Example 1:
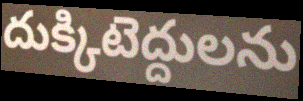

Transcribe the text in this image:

దుక్కిటెద్దులను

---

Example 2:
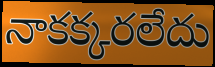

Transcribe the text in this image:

నాకక్కరలేదు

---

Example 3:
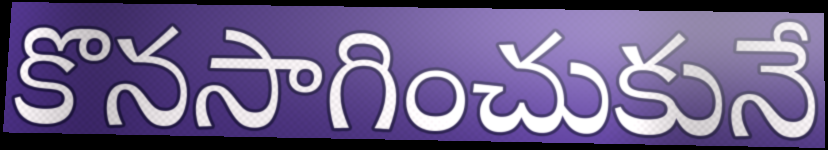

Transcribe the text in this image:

కొనసాగించుకునే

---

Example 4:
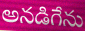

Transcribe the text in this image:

అనడిగేను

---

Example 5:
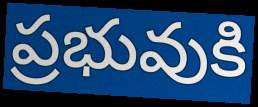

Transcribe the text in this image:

ప్రభువుకి